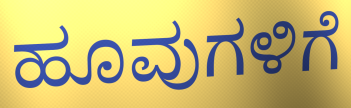
ಹೂವುಗಳಿಗೆ